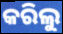
କରିଲୁ